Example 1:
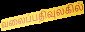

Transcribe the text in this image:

வலைப்பதிவுலகில்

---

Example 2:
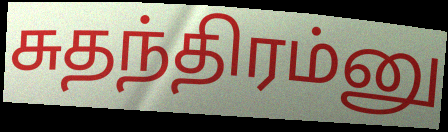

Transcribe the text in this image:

சுதந்திரம்னு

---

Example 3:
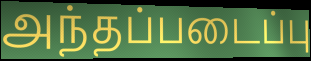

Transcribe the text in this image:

அந்தப்படைப்பு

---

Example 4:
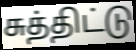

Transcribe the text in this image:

சுத்திட்டு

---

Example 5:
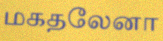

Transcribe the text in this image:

மகதலேனா